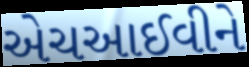
એચઆઈવીને